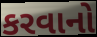
કરવાનો